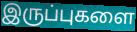
இருப்புகளை